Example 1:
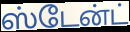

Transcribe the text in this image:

ஸ்டேன்ட்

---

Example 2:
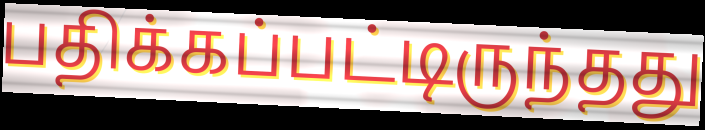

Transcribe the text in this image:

பதிக்கப்பட்டிருந்தது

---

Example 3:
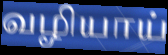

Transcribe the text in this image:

வழியாய்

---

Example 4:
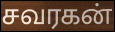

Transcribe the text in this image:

சவரகன்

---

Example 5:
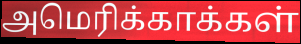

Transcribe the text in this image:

அமெரிக்காக்கள்